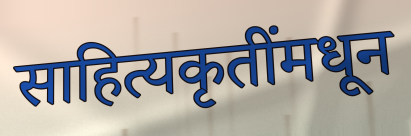
साहित्यकृतींमधून